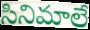
సినిమాలే